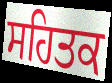
ਸਹਿਤਕ